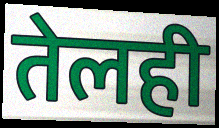
तेलही